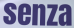
senza